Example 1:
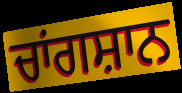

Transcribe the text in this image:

ਚਾਂਗਸ਼ਾਨ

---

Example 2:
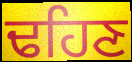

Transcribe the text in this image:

ਢਹਿਣ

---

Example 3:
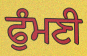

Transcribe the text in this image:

ਫੁੰਮਣੀ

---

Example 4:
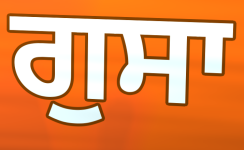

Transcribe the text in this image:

ਗੁਸਾ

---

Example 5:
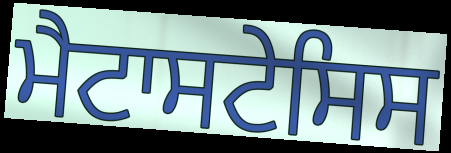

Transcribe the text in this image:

ਮੈਟਾਸਟੇਸਿਸ